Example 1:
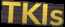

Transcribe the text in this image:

TKIs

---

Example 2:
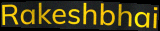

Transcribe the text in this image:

Rakeshbhai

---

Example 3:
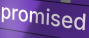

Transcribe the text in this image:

promised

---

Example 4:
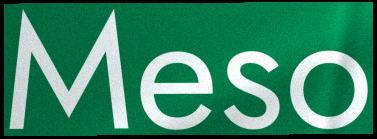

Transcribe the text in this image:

Meso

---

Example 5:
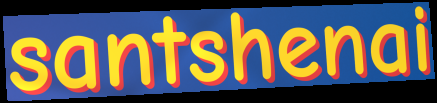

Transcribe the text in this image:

santshenai